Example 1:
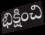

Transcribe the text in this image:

భిక్షించి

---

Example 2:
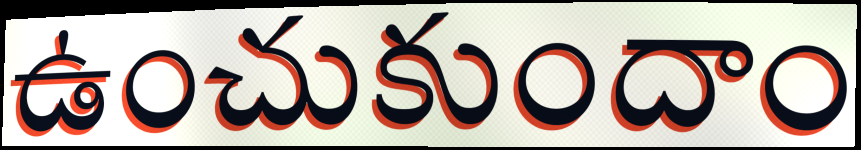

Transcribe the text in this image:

ఉంచుకుందాం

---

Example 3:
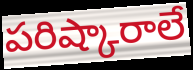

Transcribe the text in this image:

పరిష్కారాలే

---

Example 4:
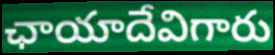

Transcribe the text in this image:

ఛాయాదేవిగారు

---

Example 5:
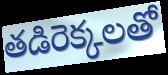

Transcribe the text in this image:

తడిరెక్కలతో